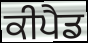
ਕੀਪੈਡ